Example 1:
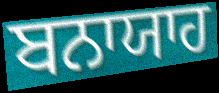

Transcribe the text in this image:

ਬਨਾਯਾਹ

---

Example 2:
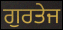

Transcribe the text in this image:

ਗੁਰਤੇਜ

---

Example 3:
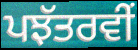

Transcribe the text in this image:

ਪਝੱਤਰਵੀਂ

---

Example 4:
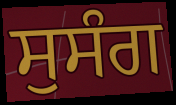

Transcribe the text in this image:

ਸੁਸੰਗ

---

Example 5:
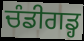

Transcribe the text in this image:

ਚੰਡੀਗਡ੍ਹ